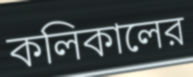
কলিকালের